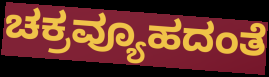
ಚಕ್ರವ್ಯೂಹದಂತೆ